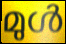
മുൾ